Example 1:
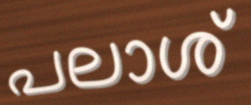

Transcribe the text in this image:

പലാശ്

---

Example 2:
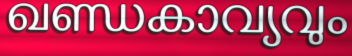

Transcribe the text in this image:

ഖണ്ഡകാവ്യവും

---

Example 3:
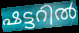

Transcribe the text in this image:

ഷട്ടറിൽ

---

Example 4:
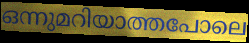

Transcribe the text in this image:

ഒന്നുമറിയാത്തപോലെ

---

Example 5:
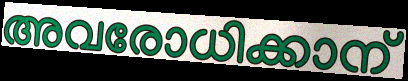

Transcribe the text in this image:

അവരോധിക്കാന്